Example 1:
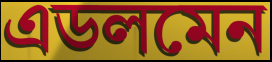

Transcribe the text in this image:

এডলমেন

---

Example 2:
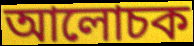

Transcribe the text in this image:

আলোচক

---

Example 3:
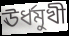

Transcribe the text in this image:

ঊৰ্ধমুখী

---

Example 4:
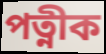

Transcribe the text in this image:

পত্নীক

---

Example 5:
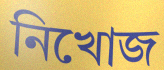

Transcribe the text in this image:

নিখোজ